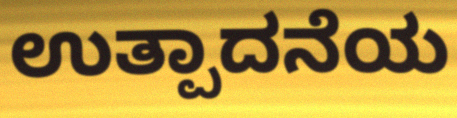
ಉತ್ಪಾದನೆಯ